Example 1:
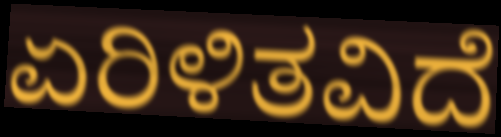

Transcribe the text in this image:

ಏರಿಳಿತವಿದೆ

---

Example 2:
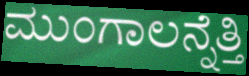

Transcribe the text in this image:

ಮುಂಗಾಲನ್ನೆತ್ತಿ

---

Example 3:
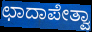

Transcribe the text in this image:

ಛಾದಾಪೇತ್ವಾ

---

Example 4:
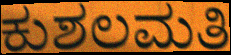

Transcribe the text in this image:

ಕುಶಲಮತಿ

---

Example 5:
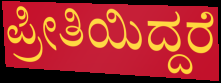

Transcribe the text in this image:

ಪ್ರೀತಿಯಿದ್ದರೆ